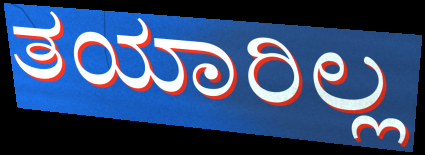
ತಯಾರಿಲ್ಲ